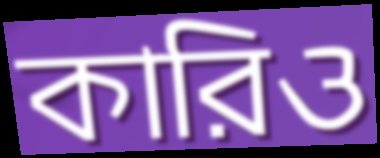
কারিও